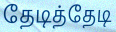
தேடித்தேடி